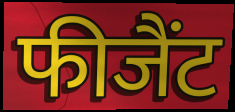
फीजैंट